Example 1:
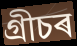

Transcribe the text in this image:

গ্ৰীচৰ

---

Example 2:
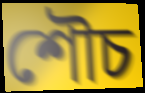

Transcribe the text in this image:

শৌচ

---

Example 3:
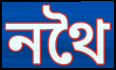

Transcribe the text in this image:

নথৈ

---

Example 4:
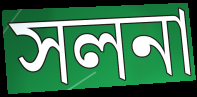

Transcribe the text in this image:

সলনা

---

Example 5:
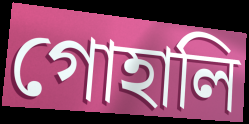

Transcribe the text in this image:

গোহালি